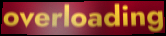
overloading